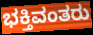
ಭಕ್ತಿವಂತರು